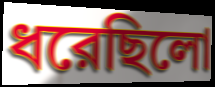
ধরেছিলো